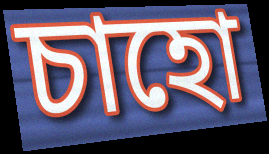
চাহো